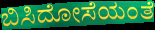
ಬಿಸಿದೋಸೆಯಂತೆ